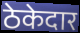
ठेकेदार